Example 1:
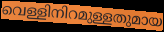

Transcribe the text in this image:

വെള്ളിനിറമുള്ളതുമായ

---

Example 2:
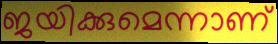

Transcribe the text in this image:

ജയിക്കുമെന്നാണ്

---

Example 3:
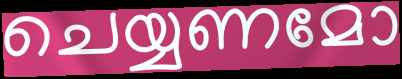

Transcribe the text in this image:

ചെയ്യണമോ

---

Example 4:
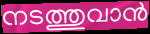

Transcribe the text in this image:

നടത്തുവാൻ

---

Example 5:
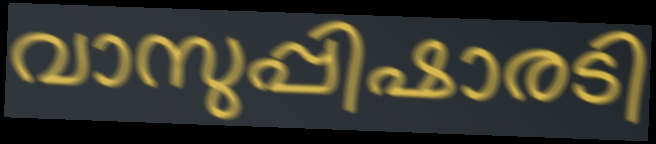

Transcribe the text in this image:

വാസുപ്പിഷാരടി